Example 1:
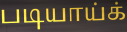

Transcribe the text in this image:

படியாய்க்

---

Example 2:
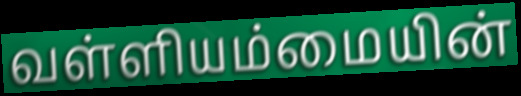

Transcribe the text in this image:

வள்ளியம்மையின்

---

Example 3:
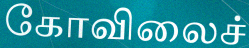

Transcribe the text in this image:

கோவிலைச்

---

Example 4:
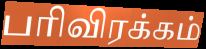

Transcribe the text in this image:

பரிவிரக்கம்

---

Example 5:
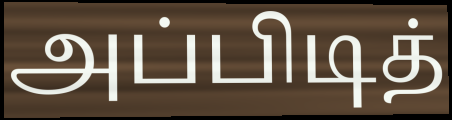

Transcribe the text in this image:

அப்பிடித்